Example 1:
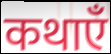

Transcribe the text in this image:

कथाएँ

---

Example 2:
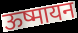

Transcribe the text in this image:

ऊष्मायन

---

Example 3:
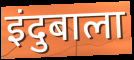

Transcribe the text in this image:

इंदुबाला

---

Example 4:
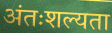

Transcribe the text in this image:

अंतःशल्यता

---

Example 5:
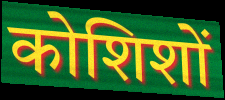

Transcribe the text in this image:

कोशिशों